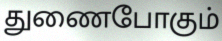
துணைபோகும்